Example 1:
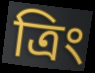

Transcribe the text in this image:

ত্রিং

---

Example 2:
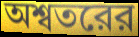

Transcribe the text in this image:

অশ্বতরের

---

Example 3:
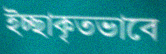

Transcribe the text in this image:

ইচ্ছাকৃতভাবে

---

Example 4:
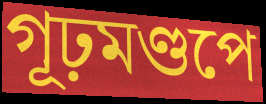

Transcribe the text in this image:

গূঢ়মণ্ডপে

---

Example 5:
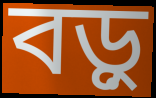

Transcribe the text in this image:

বড়ু